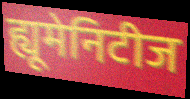
ह्यूमेनिटीज